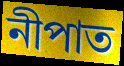
নীপাত